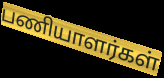
பணியாளர்கள்